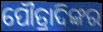
ପୌତ୍ରାଦିଙ୍କର